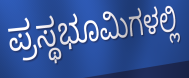
ಪ್ರಸ್ಥಭೂಮಿಗಳಲ್ಲಿ